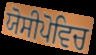
ਯੋਸੀਪੋਵਿਚ